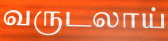
வருடலாய்